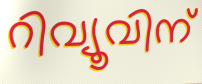
റിവ്യൂവിന്